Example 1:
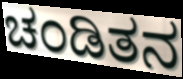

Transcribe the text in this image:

ಚಂಡಿತನ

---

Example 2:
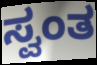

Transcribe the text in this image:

ಸ್ವಂತ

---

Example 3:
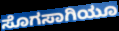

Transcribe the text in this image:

ಸೊಗಸಾಗಿಯೂ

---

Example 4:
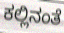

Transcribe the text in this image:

ಕಲ್ಲಿನಂತೆ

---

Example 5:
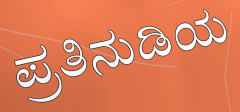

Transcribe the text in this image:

ಪ್ರತಿನುಡಿಯ